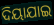
ଦିୟାଯାଇ